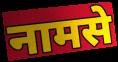
नामसे